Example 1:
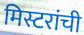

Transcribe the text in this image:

मिस्टरांची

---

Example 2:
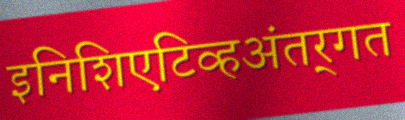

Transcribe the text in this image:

इनिशिएटिव्हअंतर्गत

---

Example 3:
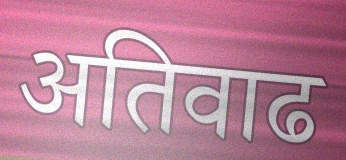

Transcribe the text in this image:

अतिवाढ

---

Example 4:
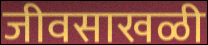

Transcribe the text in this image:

जीवसाखळी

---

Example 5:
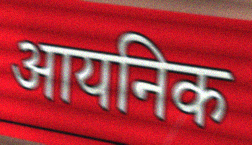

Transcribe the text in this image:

आयनिक